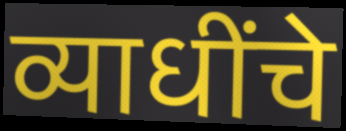
व्याधींचे